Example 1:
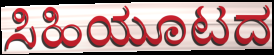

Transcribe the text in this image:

ಸಿಹಿಯೂಟದ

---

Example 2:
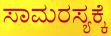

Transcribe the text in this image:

ಸಾಮರಸ್ಯಕ್ಕೆ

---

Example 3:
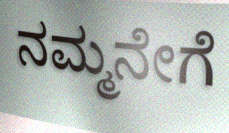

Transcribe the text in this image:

ನಮ್ಮನೇಗೆ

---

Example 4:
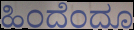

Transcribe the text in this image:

ಹಿಂದೆಂದೂ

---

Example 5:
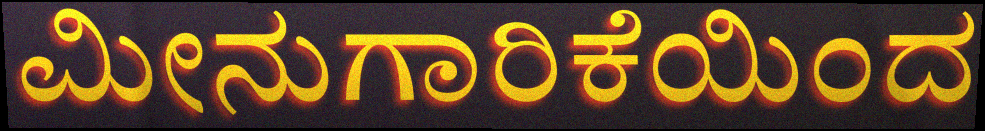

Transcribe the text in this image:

ಮೀನುಗಾರಿಕೆಯಿಂದ